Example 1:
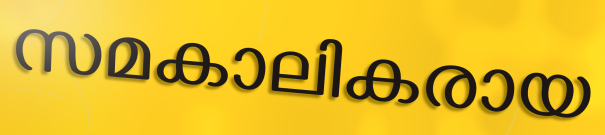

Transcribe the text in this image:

സമകാലികരായ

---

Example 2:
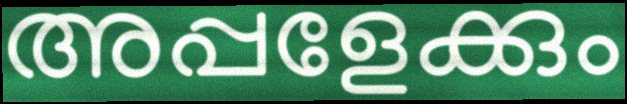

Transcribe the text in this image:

അപ്പളേക്കും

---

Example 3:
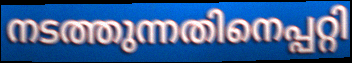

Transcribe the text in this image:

നടത്തുന്നതിനെപ്പറ്റി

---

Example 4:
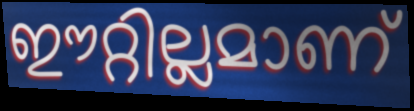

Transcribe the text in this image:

ഈറ്റില്ലമാണ്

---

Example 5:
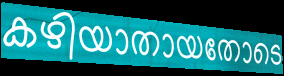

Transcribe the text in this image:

കഴിയാതായതോടെ